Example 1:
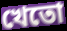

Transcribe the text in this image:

খেতো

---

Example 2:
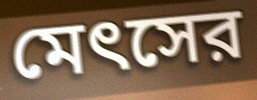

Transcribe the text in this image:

মেৎসের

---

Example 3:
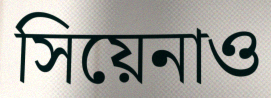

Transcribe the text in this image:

সিয়েনাও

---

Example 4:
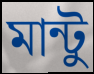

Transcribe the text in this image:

মান্টু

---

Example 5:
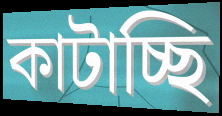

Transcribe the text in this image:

কাটাচ্ছি